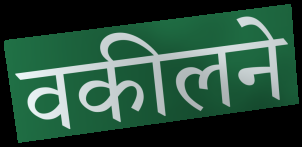
वकीलने